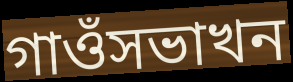
গাওঁসভাখন